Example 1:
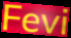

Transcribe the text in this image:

Fevi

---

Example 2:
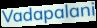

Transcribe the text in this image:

Vadapalani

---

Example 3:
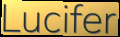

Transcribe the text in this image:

Lucifer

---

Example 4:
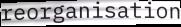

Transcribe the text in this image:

reorganisation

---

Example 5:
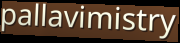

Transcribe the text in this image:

pallavimistry